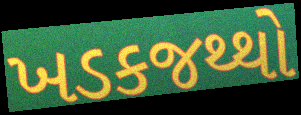
ખડકજથ્થો